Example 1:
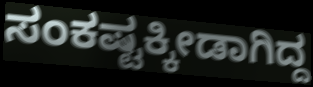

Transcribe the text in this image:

ಸಂಕಷ್ಟಕ್ಕೀಡಾಗಿದ್ದ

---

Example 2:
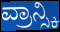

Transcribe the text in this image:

ವ್ರಾನ್ಸ್ಕಿ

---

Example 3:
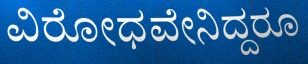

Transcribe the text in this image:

ವಿರೋಧವೇನಿದ್ದರೂ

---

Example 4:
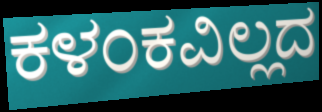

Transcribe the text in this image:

ಕಳಂಕವಿಲ್ಲದ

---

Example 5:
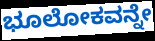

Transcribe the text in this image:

ಭೂಲೋಕವನ್ನೇ